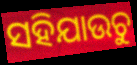
ସହିଯାଉଚୁ